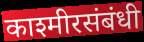
काश्मीरसंबंधी